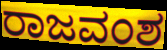
ರಾಜವಂಶ